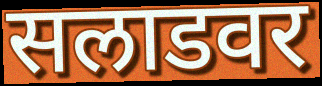
सलाडवर